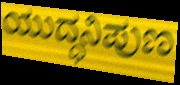
ಯುದ್ಧನಿಪುಣ